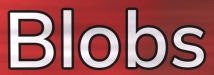
Blobs